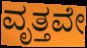
ವೃತ್ತವೇ